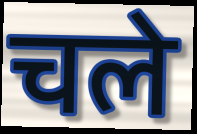
चले